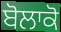
ਬੋਲਾਕੋ